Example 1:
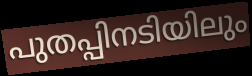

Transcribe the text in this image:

പുതപ്പിനടിയിലും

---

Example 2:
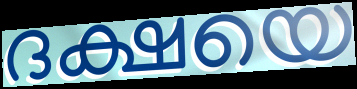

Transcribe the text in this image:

ദക്ഷയെ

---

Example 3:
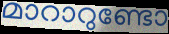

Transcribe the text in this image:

മാറാറുണ്ടോ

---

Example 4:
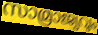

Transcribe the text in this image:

സാമ്രാജ്യവും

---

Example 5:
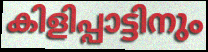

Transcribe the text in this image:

കിളിപ്പാട്ടിനും